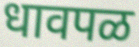
धावपळ